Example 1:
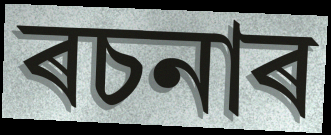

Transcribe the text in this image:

ৰচনাৰ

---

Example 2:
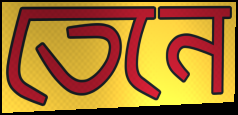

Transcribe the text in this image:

তেনে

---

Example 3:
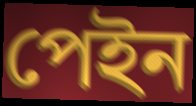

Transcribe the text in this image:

পেইন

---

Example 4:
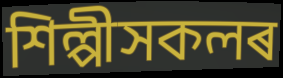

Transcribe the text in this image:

শিল্পীসকলৰ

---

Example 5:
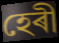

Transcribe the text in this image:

হেৰী